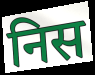
निस